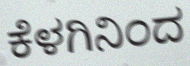
ಕೆಳಗಿನಿಂದ